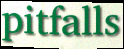
pitfalls